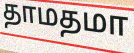
தாமதமா